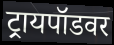
ट्रायपॉडवर